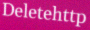
Deletehttp